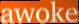
awoke